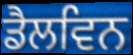
ਡੈਲਵਿਨ